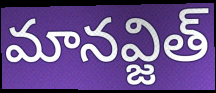
మానవ్జిత్